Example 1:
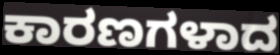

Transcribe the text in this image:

ಕಾರಣಗಳಾದ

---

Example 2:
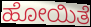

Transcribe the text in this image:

ಹೋಯಿತೆ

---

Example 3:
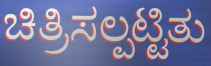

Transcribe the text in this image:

ಚಿತ್ರಿಸಲ್ಪಟ್ಟಿತು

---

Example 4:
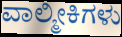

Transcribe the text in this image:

ವಾಲ್ಮೀಕಿಗಳು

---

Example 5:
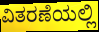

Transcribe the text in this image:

ವಿತರಣೆಯಲ್ಲಿ